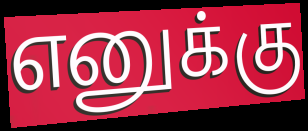
எனுக்கு